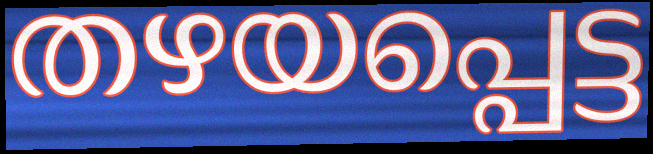
തഴയപ്പെട്ട